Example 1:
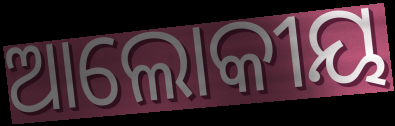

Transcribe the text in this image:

ଆଲୋକୀୟ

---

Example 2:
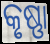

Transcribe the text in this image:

କୃଷ୍ଣା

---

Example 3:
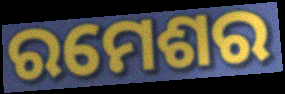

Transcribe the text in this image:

ରମେଶର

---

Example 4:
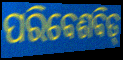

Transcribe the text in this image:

ପରିବେଶବିତ୍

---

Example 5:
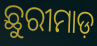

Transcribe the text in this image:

ଛୁରୀମାଡ଼